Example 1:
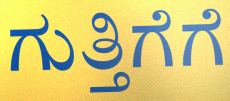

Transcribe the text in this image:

ಗುತ್ತಿಗೆಗೆ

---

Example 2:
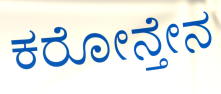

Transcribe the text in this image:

ಕರೋನ್ತೇನ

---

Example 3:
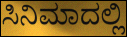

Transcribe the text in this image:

ಸಿನಿಮಾದಲ್ಲಿ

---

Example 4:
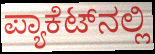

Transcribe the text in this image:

ಪ್ಯಾಕೆಟ್‍ನಲ್ಲಿ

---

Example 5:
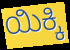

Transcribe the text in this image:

ಯಿಕ್ಕಿ